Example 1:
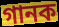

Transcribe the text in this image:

গানক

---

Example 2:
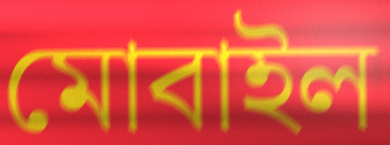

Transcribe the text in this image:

মোবাইল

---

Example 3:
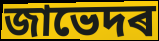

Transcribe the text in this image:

জাভেদৰ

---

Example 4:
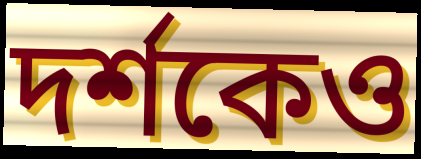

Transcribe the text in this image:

দৰ্শকেও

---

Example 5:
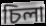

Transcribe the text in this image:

চিলা